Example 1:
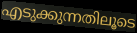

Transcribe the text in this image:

എടുക്കുന്നതിലൂടെ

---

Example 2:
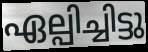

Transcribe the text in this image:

ഏല്പിച്ചിട്ടു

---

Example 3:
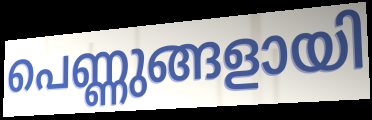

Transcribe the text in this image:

പെണ്ണുങ്ങളായി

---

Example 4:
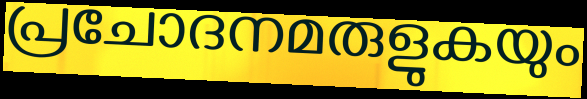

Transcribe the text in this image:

പ്രചോദനമരുളുകയും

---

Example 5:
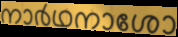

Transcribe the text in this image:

നാർഥനാശോ